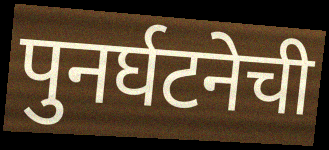
पुनर्घटनेची